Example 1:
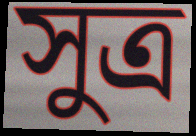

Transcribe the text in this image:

সুত্র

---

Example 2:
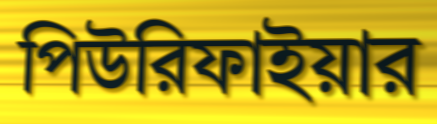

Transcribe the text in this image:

পিউরিফাইয়ার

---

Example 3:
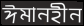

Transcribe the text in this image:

ঈমানহীন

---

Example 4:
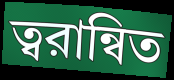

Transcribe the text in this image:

ত্বরান্বিত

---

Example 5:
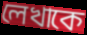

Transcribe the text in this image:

লেখাকে